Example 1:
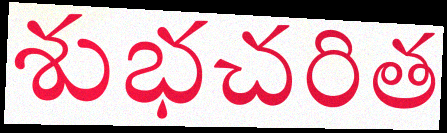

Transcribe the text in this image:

శుభచరిత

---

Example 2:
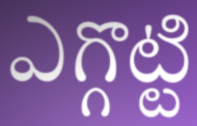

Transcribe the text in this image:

ఎగ్గొట్టి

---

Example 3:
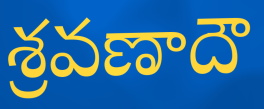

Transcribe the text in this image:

శ్రవణాదౌ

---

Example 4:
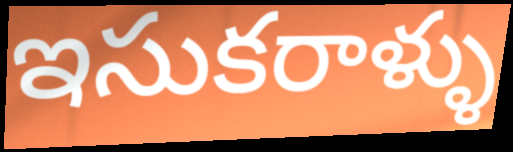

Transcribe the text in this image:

ఇసుకరాళ్ళు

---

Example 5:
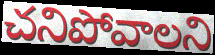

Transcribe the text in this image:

చనిపోవాలని